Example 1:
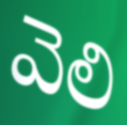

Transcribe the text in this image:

వెలి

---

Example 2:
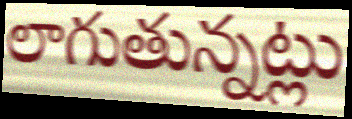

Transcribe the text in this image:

లాగుతున్నట్లు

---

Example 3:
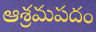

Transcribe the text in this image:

ఆశ్రమపదం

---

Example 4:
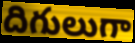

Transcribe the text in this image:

దిగులుగా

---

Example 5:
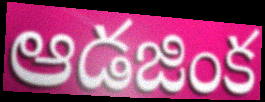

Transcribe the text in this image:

ఆడజింక